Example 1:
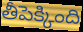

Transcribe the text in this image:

తీపెక్కింది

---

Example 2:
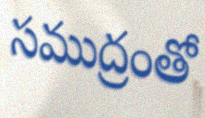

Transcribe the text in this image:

సముద్రంతో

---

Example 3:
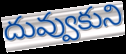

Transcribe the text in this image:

దువ్వుకుని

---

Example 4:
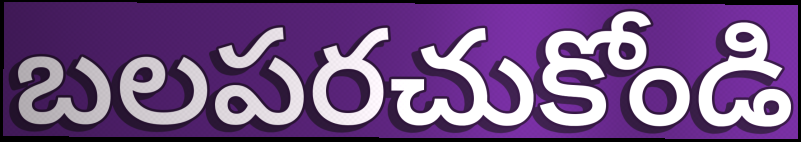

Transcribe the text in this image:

బలపరచుకోండి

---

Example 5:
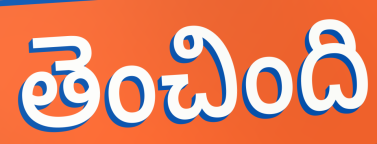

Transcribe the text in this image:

తెంచింది